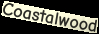
Coastalwood